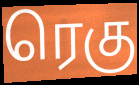
ரெகு